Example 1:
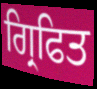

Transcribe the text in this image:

ਗ੍ਰਿਫਿਤ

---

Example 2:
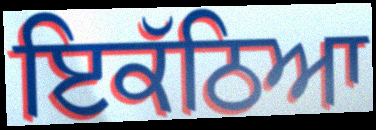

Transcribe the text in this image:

ਇਕੱਠਿਆ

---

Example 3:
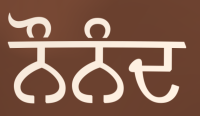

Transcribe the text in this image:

ਨੌਨੰਦ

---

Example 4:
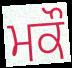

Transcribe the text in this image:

ਮਕੌ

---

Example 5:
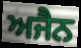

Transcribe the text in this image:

ਅਜੈਨ